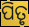
ପିତୃ